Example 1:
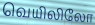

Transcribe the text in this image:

வெயிலிலோ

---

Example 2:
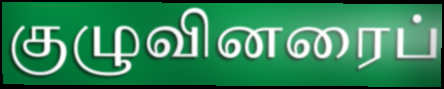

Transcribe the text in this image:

குழுவினரைப்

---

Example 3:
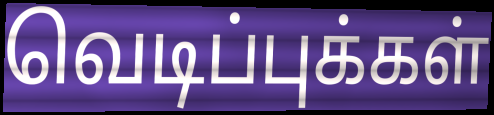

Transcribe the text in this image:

வெடிப்புக்கள்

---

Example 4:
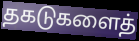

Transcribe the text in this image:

தகடுகளைத்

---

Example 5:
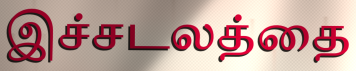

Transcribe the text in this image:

இச்சடலத்தை